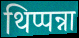
थिप्पन्ना